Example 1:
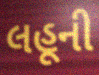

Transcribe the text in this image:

લહૂની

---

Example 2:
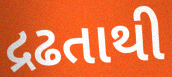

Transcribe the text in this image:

દ્રઢતાથી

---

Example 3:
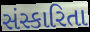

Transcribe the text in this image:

સંસ્કારિતા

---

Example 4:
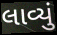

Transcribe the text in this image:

લાવ્યું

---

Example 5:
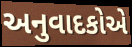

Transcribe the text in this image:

અનુવાદકોએ